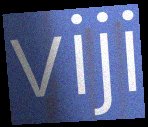
viji